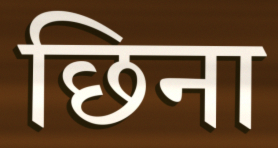
छिना